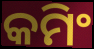
କମିଂ